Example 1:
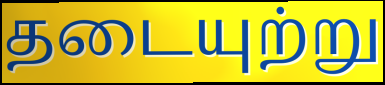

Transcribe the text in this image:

தடையுற்று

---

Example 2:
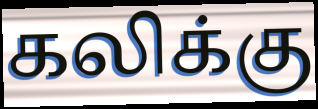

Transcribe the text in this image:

கலிக்கு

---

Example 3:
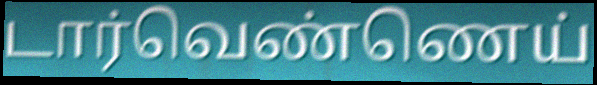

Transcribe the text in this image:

டார்வெண்ணெய்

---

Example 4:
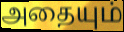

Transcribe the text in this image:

அதையும்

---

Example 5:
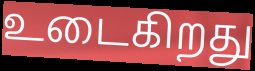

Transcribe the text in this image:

உடைகிறது